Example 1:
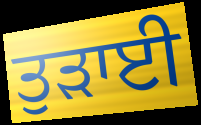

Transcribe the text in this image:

ਤੁੜਾਈ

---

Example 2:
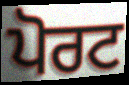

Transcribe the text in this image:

ਪੋਰਟ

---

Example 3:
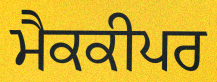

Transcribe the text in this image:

ਮੈਕਕੀਪਰ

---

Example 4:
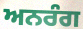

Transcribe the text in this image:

ਅਨਰੰਗ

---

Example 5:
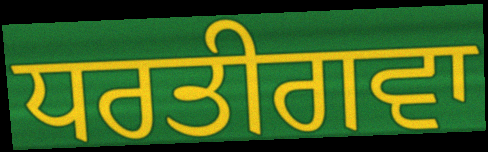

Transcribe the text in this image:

ਧਰਤੀਗਵਾ